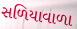
સળિયાવાળા